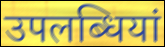
उपलब्धियां